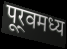
पूर्वमध्य